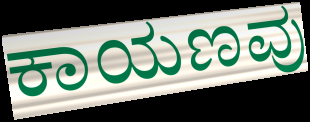
ಕಾಯಣವು